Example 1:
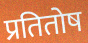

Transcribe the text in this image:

प्रतितोष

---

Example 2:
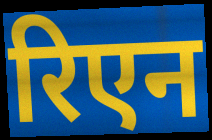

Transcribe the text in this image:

रिएन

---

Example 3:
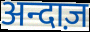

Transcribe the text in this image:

अन्दाज़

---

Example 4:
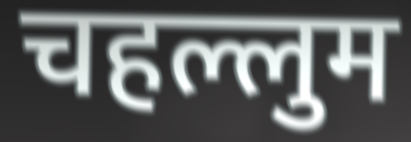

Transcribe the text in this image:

चहल्लुम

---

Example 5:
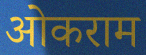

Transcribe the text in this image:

ओकराम